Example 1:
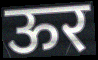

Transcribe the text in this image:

ऊर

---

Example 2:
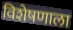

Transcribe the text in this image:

विशेषणाला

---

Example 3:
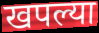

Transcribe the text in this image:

खपल्या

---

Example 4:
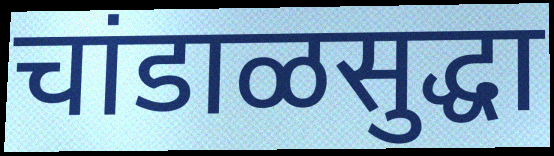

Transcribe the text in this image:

चांडाळसुद्धा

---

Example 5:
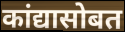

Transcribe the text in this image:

कांद्यासोबत